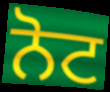
ਨੋਟ